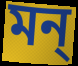
মন্